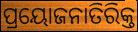
ପ୍ରୟୋଜନାତିରିକ୍ତ